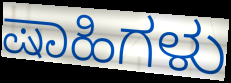
ಷಾಹಿಗಳು